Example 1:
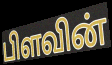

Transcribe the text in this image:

பிளவின்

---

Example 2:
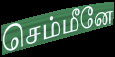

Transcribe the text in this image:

செம்மீனே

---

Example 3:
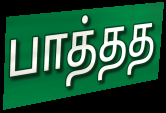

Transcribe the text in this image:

பாத்தத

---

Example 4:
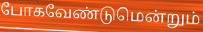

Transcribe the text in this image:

போகவேண்டுமென்றும்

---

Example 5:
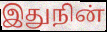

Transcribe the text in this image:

இதுநின்